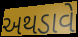
અથડાવે